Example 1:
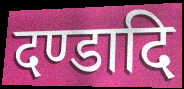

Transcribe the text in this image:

दण्डादि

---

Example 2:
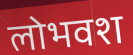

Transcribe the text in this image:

लोभवश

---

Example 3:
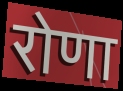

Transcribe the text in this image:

रोणा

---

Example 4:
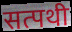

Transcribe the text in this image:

सत्पथी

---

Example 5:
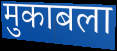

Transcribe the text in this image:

मुकाबला